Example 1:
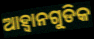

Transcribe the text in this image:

ଆହ୍ୱାନଗୁଡିକ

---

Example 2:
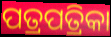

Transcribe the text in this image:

ପତ୍ରପତ୍ରିକା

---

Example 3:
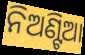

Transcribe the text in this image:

ନିଅଣ୍ଟିଆ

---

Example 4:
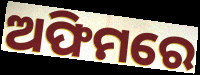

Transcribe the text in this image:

ଅଫିମରେ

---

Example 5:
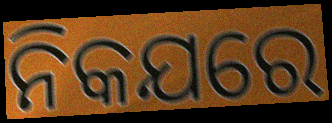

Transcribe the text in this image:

ନିକଯରେ